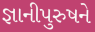
જ્ઞાનીપુરુષને